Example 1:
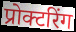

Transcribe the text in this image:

प्रोक्टरिंग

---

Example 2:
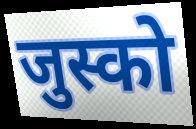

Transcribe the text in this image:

जुस्को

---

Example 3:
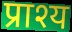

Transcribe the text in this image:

प्राश्य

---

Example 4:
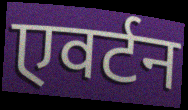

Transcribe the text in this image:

एवर्टन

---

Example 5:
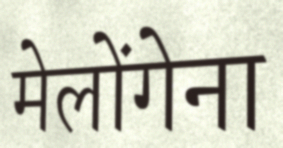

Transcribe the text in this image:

मेलोंगेना